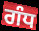
ਗੰਧ